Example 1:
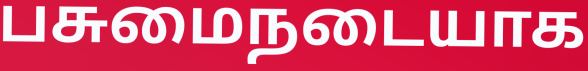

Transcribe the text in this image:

பசுமைநடையாக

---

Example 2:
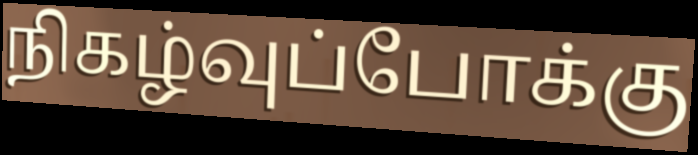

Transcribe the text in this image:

நிகழ்வுப்போக்கு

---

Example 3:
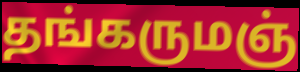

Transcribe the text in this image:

தங்கருமஞ்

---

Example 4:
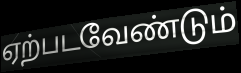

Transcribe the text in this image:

ஏற்படவேண்டும்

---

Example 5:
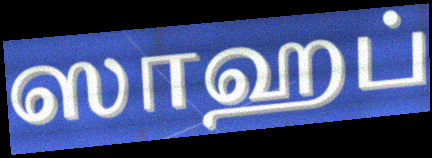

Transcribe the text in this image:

ஸாஹப்